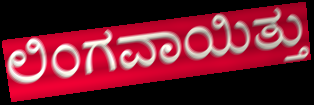
ಲಿಂಗವಾಯಿತ್ತು